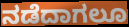
ನಡೆದಾಗಲೂ